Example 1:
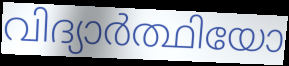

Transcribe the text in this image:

വിദ്യാർത്ഥിയോ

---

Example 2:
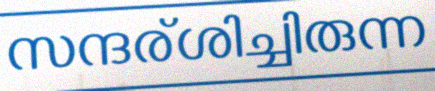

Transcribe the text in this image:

സന്ദര്ശിച്ചിരുന്ന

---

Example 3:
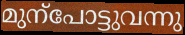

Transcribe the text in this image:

മുന്പോട്ടുവന്നു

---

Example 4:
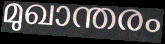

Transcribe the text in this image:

മുഖാന്തരം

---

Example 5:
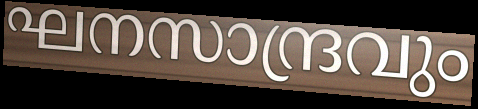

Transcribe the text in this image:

ഘനസാന്ദ്രവും